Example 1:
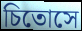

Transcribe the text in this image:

চিতোসে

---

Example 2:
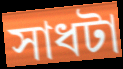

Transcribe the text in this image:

সাধটা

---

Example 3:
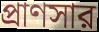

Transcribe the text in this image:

প্রাণসার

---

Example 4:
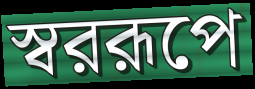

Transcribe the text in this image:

স্বররূপে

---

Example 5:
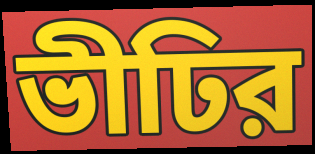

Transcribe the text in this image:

ভীঢির